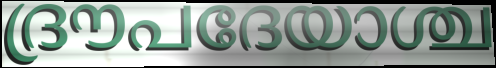
ദ്രൗപദേയാശ്ച